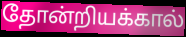
தோன்றியக்கால்